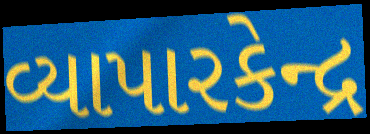
વ્યાપારકેન્દ્ર